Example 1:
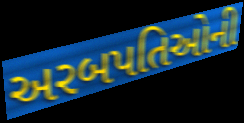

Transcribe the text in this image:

અરબપતિઓની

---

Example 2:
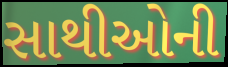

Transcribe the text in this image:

સાથીઓની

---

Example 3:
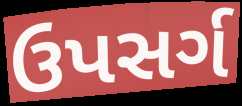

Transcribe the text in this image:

ઉપસર્ગ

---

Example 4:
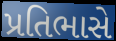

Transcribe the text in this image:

પ્રતિભાસે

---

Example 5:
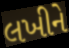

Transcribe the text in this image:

લખીને